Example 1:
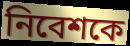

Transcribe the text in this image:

নিবেশকে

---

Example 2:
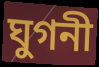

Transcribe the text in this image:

ঘুগনী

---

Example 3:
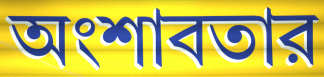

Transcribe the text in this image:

অংশাবতার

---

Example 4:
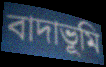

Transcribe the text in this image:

বাদাভূমি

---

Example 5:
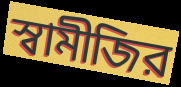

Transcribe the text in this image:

স্বামীজির